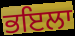
ਭਇਲਾ